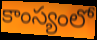
కాంస్యంలో